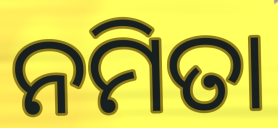
ନମିତା